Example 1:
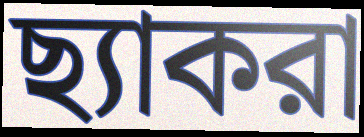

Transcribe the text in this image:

ছ্যাকরা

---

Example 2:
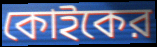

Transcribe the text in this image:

কোইকের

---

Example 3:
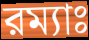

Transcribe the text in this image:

রম্যাঃ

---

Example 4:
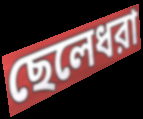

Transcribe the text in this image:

ছেলেধরা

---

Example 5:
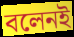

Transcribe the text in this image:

বলেনই